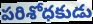
పరిశోధకుడు